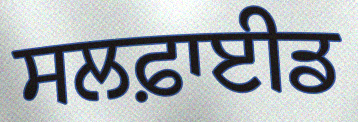
ਸਲਫ਼ਾਈਡ